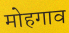
मोहगाव